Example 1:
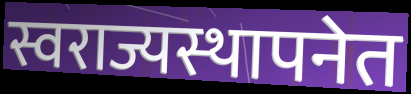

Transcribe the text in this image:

स्वराज्यस्थापनेत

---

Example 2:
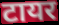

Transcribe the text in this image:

टायर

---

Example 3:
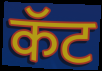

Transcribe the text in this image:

कॅट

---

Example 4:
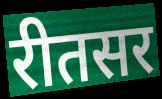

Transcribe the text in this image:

रीतसर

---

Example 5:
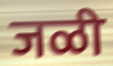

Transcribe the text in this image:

जळी